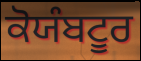
ਕੋਯੰਬਟੂਰ